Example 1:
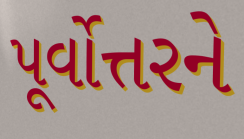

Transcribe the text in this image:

પૂર્વોત્તરને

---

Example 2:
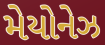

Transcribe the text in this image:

મેયોનેઝ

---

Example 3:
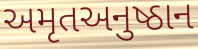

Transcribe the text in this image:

અમૃતઅનુષ્ઠાન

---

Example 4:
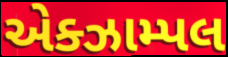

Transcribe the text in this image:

એક્ઝામ્પલ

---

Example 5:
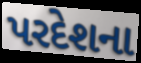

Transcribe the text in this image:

પરદેશના